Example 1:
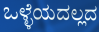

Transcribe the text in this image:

ಒಳ್ಳೆಯದಲ್ಲದ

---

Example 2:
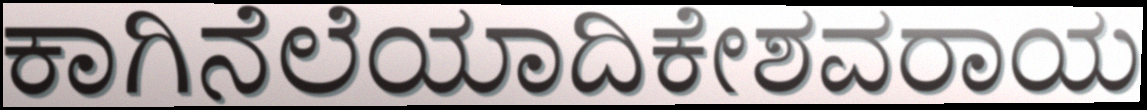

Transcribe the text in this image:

ಕಾಗಿನೆಲೆಯಾದಿಕೇಶವರಾಯ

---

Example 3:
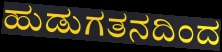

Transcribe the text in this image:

ಹುಡುಗತನದಿಂದ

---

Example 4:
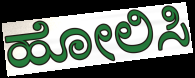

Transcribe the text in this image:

ಹೋಲಿಸಿ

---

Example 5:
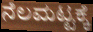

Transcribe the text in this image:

ನೆಲಮಟ್ಟಕ್ಕೆ